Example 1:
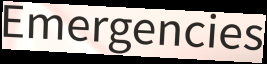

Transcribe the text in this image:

Emergencies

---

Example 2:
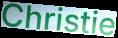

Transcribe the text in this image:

Christie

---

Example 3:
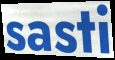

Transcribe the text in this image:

sasti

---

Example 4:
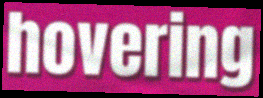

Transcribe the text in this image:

hovering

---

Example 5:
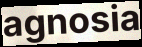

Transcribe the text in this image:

agnosia